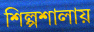
শিল্পশালায়